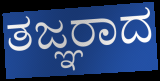
ತಜ್ಞರಾದ